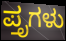
ಪ್ತೃಗಳು